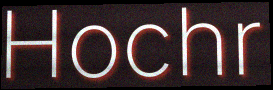
Hochr